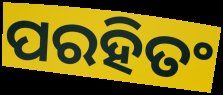
ପରହିତଂ